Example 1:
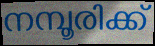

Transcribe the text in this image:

നമ്പൂരിക്ക്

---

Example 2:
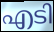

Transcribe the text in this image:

എടി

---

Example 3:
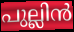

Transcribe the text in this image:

പുല്ലിൻ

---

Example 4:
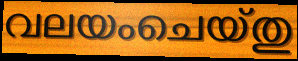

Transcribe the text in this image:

വലയംചെയ്തു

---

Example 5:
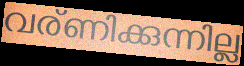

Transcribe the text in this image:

വര്ണിക്കുന്നില്ല